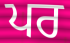
ਪਰ